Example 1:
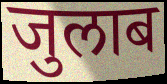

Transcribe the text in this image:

जुलाब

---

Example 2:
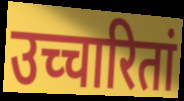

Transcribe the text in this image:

उच्चारितां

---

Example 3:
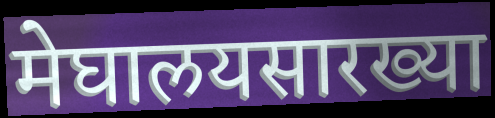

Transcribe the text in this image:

मेघालयसारख्या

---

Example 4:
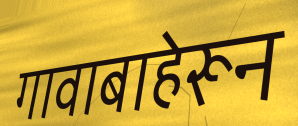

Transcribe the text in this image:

गावाबाहेरून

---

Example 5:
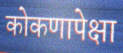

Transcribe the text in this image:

कोकणापेक्षा